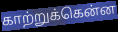
காற்றுக்கென்ன